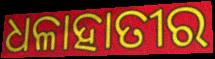
ଧଳାହାତୀର